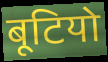
बूटियो